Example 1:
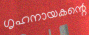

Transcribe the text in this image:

ഗൃഹനായകന്റെ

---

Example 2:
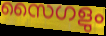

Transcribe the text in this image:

സൈഗളും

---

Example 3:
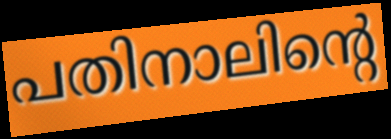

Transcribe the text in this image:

പതിനാലിന്റെ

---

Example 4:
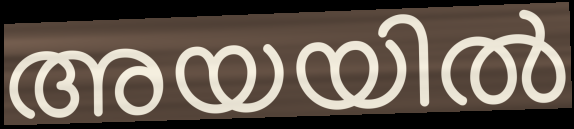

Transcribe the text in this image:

അയയിൽ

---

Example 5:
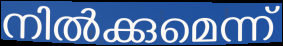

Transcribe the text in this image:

നിൽക്കുമെന്ന്